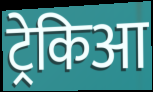
ट्रेकिआ